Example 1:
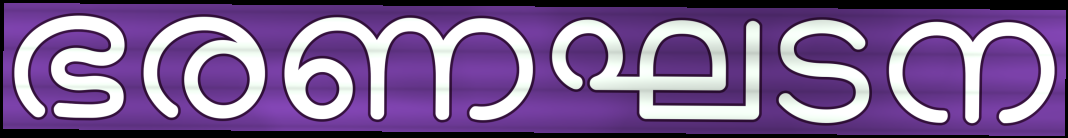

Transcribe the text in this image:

ഭരണഘടന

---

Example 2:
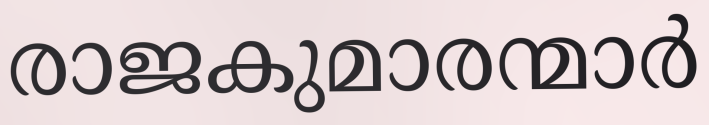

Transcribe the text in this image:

രാജകുമാരന്മാർ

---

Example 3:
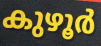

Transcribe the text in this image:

കുഴൂർ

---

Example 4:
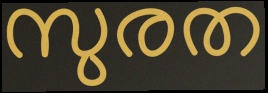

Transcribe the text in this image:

സുരത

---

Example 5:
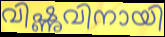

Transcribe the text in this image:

വിഷ്ണുവിനായി